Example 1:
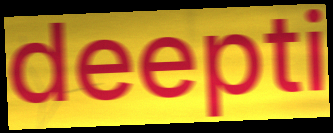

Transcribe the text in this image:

deepti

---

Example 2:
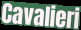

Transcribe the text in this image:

Cavalieri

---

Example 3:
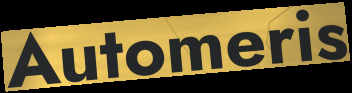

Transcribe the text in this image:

Automeris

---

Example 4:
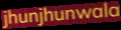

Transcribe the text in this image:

jhunjhunwala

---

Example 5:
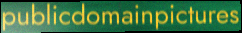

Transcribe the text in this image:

publicdomainpictures